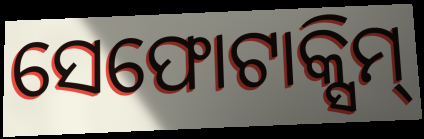
ସେଫୋଟାକ୍ସିମ୍